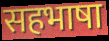
सहभाषा